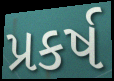
પ્રકર્ષ